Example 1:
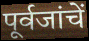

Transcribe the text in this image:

पूर्वजांचें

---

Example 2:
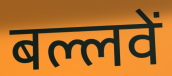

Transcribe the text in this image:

बल्लवें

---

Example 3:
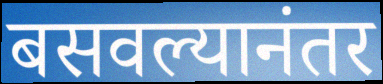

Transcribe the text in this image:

बसवल्यानंतर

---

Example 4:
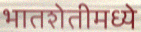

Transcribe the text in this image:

भातशेतीमध्ये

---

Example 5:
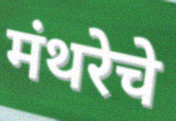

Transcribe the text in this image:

मंथरेचे